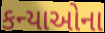
કન્યાઓના